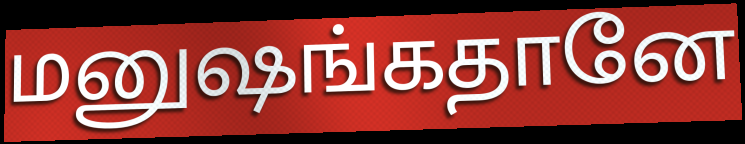
மனுஷங்கதானே